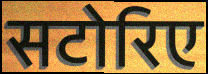
सटोरिए